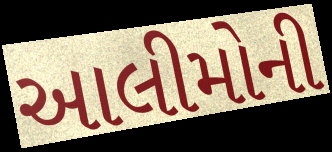
આલીમોની